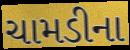
ચામડીના